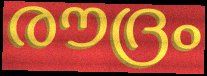
രൗദ്രം